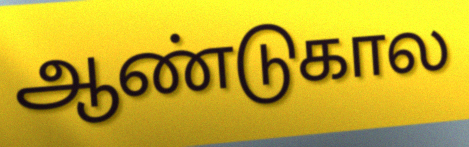
ஆண்டுகால